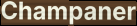
Champaner